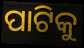
ପାଟିକୁ